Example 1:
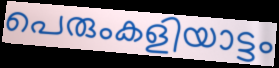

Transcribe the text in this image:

പെരുംകളിയാട്ടം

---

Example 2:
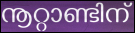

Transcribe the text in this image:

നൂറ്റാണ്ടിന്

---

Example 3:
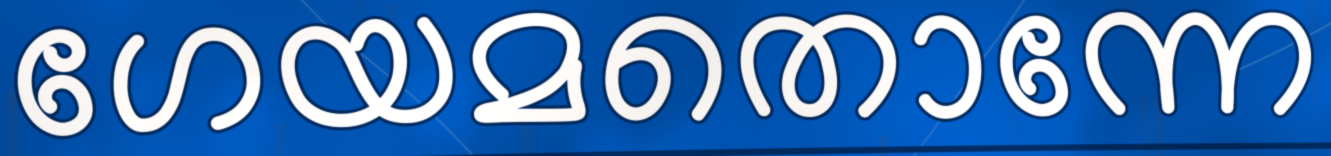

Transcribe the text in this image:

ഗേയമതൊന്നേ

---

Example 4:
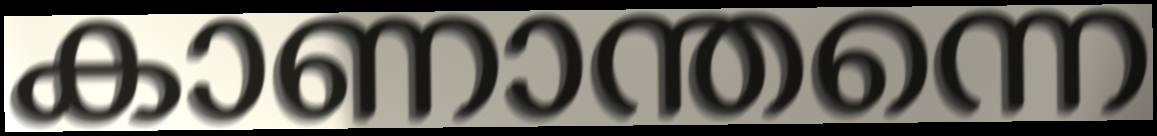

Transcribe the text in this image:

കാണാന്തന്നെ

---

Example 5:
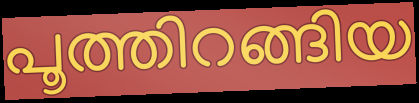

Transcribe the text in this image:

പൂത്തിറങ്ങിയ